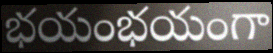
భయంభయంగా